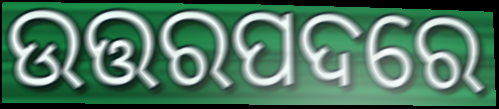
ଉତ୍ତରପଦରେ